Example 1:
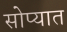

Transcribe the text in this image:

सोप्यात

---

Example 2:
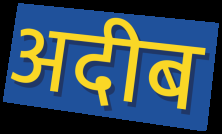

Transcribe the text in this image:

अदीब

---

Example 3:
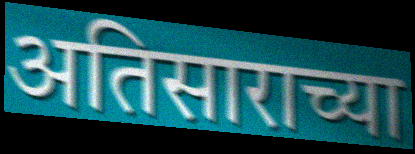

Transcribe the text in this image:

अतिसाराच्या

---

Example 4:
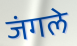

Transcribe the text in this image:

जंगले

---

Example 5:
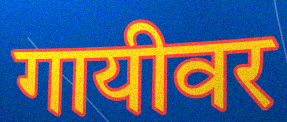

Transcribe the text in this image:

गायीवर